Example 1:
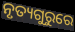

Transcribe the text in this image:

ନୃତ୍ୟଗୁରୁରେ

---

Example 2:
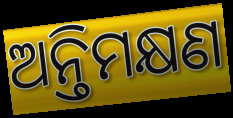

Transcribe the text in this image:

ଅନ୍ତିମକ୍ଷଣ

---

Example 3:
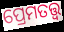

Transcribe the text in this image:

ପ୍ରେମତତ୍ତ୍ୱ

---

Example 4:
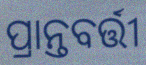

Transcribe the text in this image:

ପ୍ରାନ୍ତବର୍ତ୍ତୀ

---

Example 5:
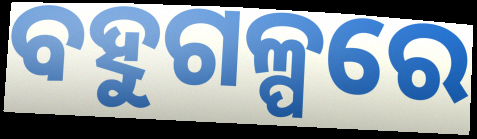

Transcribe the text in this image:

ବହୁଗଳ୍ପରେ